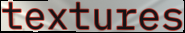
textures